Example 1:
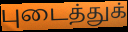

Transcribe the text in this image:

புடைத்துக்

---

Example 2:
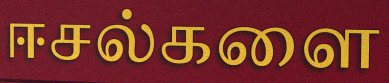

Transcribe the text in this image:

ஈசல்களை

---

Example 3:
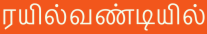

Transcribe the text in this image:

ரயில்வண்டியில்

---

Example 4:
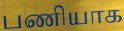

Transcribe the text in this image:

பணியாக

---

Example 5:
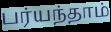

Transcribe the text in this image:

பர்யந்தாம்